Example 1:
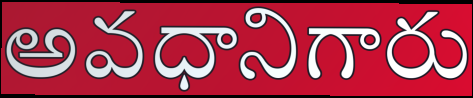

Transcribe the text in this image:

అవధానిగారు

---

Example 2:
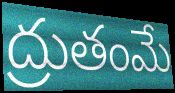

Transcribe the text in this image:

ద్రుతంమే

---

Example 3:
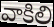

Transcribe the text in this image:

వాకిలి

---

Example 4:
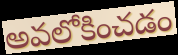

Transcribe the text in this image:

అవలోకించడం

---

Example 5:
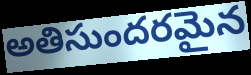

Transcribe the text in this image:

అతిసుందరమైన